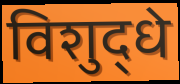
विशुद्धे